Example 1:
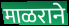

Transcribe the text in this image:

माळराने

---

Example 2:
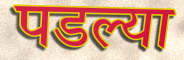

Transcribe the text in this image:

पडल्या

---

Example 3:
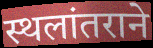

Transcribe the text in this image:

स्थलांतराने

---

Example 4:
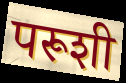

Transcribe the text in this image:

परूशी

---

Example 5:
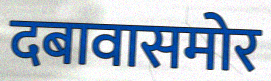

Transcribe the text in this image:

दबावासमोर